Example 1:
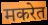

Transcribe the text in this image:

मकरेत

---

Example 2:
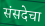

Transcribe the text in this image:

संसदेचा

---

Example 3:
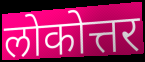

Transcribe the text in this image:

लोकोत्तर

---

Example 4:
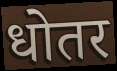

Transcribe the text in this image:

धोतर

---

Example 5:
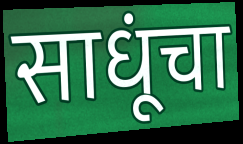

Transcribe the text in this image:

साधूंचा